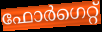
ഫോർഗെറ്റ്